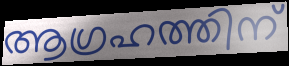
ആഗ്രഹത്തിന്